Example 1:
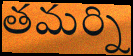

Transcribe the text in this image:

తమర్ని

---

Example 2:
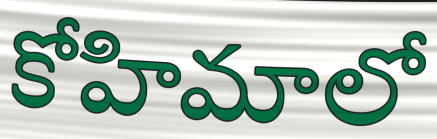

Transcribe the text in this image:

కోహిమాలో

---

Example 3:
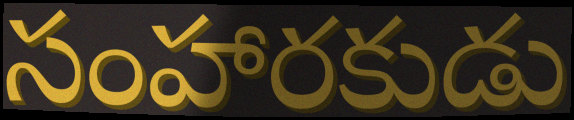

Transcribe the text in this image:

సంహారకుడు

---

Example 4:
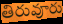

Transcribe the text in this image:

తిరువూరు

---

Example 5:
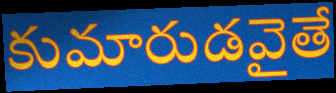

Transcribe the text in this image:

కుమారుడవైతే